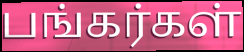
பங்கர்கள்